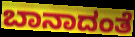
ಬಾನಾದಂತೆ